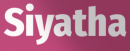
Siyatha